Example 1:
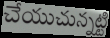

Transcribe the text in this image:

చేయుచున్నట్టి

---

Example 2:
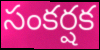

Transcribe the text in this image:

సంకర్షక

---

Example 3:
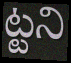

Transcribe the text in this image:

ట్టని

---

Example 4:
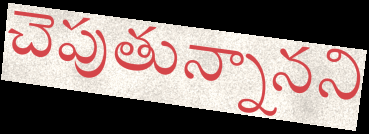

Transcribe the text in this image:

చెపుతున్నానని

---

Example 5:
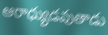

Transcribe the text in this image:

ఆరాధ్యుడవుతాడు